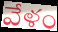
వేళం